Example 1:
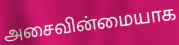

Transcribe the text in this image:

அசைவின்மையாக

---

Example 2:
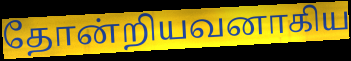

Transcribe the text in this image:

தோன்றியவனாகிய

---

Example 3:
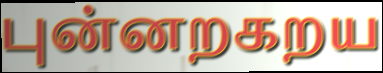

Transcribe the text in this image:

புன்னறகறய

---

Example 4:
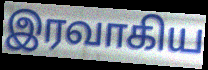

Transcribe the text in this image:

இரவாகிய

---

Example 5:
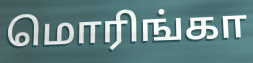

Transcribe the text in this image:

மொரிங்கா